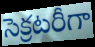
సెక్రటరీగా